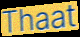
Thaat